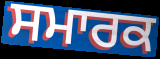
ਸਮਾਰਕ